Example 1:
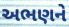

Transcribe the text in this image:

અભણને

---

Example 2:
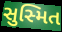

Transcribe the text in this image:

સુસ્મિત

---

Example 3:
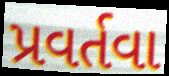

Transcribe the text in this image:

પ્રવર્તવા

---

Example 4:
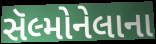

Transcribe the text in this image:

સૅલ્મોનેલાના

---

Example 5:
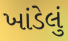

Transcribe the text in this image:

ખાંડેલું